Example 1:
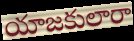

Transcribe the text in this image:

యాజకులారా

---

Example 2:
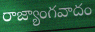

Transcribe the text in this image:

రాజ్యాంగవాదం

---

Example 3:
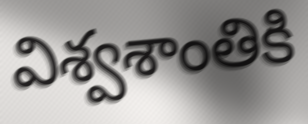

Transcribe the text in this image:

విశ్వశాంతికి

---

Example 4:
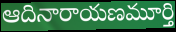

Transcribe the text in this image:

ఆదినారాయణమూర్తి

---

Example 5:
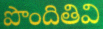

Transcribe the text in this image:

పొందితివి